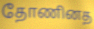
தோணினத